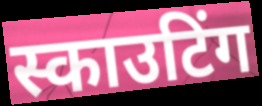
स्काउटिंग